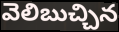
వెలిబుచ్చిన